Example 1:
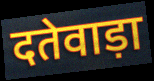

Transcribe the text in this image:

दतेवाड़ा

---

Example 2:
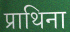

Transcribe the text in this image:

प्राथिना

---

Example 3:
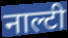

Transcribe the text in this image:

नाल्टी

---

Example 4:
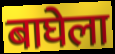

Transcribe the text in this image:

बाघेला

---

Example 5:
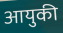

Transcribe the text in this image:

आयुकी